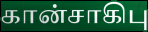
கான்சாகிபு